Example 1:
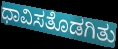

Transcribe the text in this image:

ಧಾವಿಸತೊಡಗಿತು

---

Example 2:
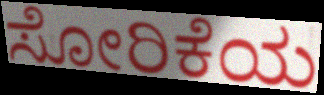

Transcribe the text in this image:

ಸೋರಿಕೆಯ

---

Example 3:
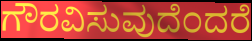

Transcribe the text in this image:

ಗೌರವಿಸುವುದೆಂದರೆ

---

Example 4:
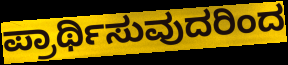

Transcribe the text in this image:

ಪ್ರಾರ್ಥಿಸುವುದರಿಂದ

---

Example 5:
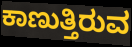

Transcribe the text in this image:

ಕಾಣುತ್ತಿರುವ